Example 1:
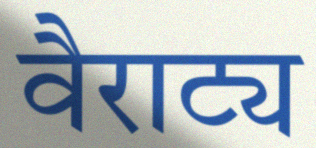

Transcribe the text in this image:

वैराट्य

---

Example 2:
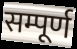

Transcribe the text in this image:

सम्‍पूर्ण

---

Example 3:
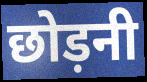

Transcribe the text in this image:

छोड़नी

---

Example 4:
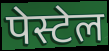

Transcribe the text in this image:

पेस्टेल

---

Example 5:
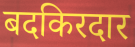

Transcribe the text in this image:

बदकिरदार